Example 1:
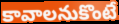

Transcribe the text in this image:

కావాలనుకొంటే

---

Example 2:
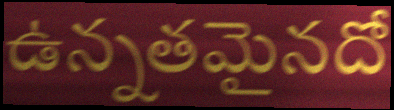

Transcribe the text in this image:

ఉన్నతమైనదో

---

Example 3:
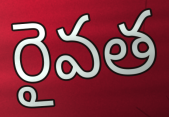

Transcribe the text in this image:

రైవత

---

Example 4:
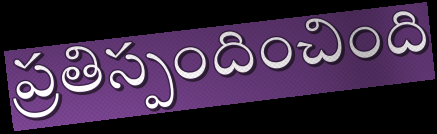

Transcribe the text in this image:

ప్రతిస్పందించింది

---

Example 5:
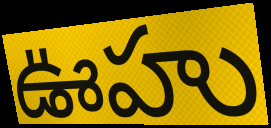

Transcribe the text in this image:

ఊహు